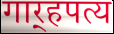
गार्हपत्य